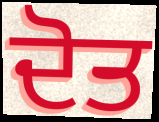
ਦੋਤ